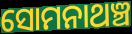
ସୋମନାଥଞ୍ଚ